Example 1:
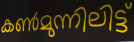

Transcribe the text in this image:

കൺമുന്നിലിട്ട്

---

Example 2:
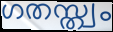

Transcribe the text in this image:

ഗതസ്ത്വം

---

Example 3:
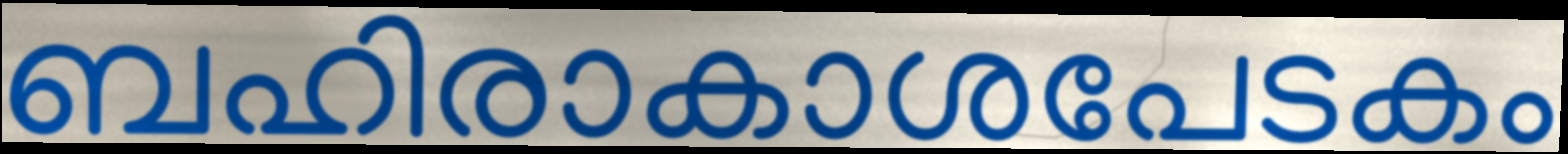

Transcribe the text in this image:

ബഹിരാകാശപേടകം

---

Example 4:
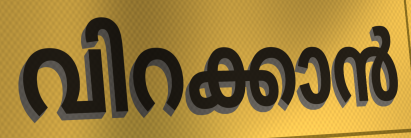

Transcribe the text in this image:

വിറക്കാൻ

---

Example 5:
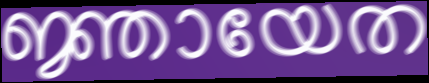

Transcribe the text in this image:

ജ്ഞായേത